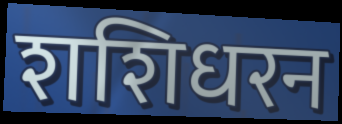
शशिधरन